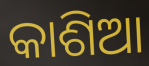
କାଶିଆ